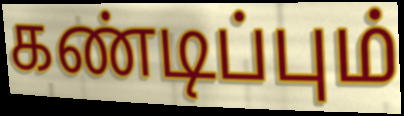
கண்டிப்பும்